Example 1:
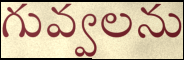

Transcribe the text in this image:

గువ్వలను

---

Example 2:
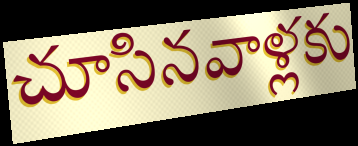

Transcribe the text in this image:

చూసినవాళ్లకు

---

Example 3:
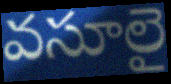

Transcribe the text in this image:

వసూలై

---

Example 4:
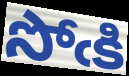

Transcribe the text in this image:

సోఁకి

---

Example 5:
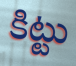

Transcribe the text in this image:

కిట్టు